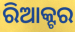
ରିଆକ୍ଟର